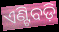
ଏଣ୍ଟିବଡ଼ି